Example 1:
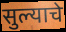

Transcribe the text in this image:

सुल्याचे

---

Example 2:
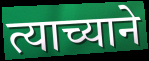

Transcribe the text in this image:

त्याच्याने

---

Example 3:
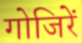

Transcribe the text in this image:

गोजिरें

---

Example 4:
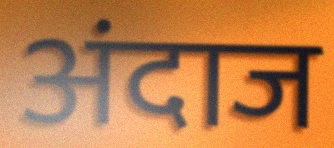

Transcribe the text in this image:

अंदाज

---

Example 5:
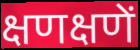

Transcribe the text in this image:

क्षणक्षणें